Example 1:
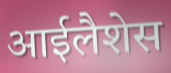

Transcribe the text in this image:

आईलैशेस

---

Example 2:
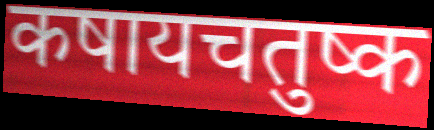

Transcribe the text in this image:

कषायचतुष्क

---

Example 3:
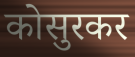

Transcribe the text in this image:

कोसुरकर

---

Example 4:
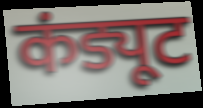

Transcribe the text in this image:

कंड्यूट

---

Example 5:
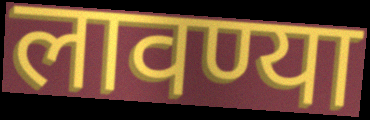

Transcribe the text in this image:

लावण्या